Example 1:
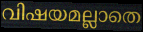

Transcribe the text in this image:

വിഷയമല്ലാതെ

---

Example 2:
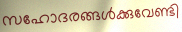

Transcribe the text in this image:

സഹോദരങ്ങൾക്കുവേണ്ടി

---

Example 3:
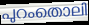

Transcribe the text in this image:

പുറംതൊലി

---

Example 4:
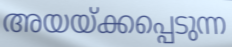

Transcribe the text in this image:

അയയ്ക്കപ്പെടുന്ന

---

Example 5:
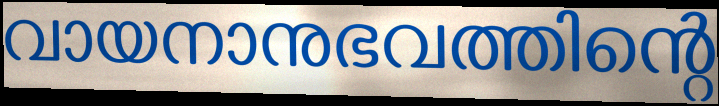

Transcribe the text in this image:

വായനാനുഭവത്തിന്റെ